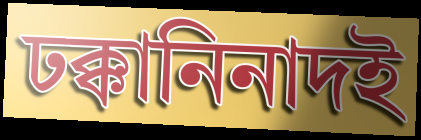
ঢক্কানিনাদই